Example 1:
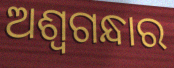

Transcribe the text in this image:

ଅଶ୍ୱଗନ୍ଧାର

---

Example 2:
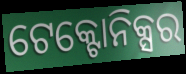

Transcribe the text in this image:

ଟେକ୍ଟୋନିକ୍ସର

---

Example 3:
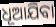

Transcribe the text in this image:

ଧୂଆଯିବା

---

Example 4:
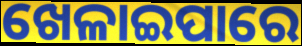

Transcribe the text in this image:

ଖେଳାଇପାରେ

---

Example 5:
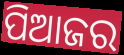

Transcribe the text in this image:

ପିଆଜର